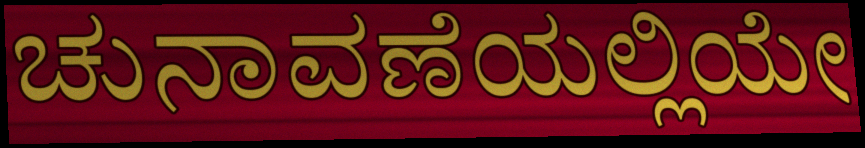
ಚುನಾವಣೆಯಲ್ಲಿಯೇ